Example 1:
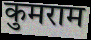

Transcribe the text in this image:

कुमराम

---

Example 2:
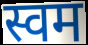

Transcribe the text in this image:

स्वम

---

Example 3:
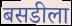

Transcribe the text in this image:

बसडीला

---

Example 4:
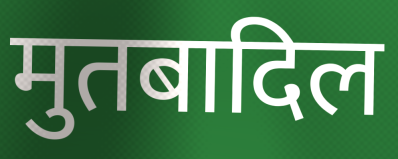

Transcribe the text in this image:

मुतबादिल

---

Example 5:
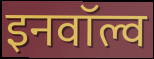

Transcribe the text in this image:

इनवॉल्व